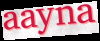
aayna